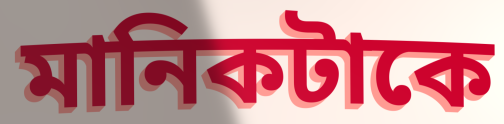
মানিকটাকে